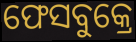
ଫେସବୁକ୍ରେ